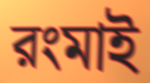
রংমাই